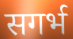
सगर्भ